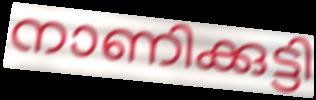
നാണിക്കുട്ടി